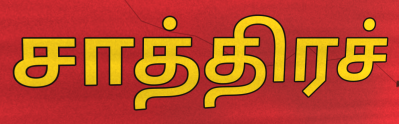
சாத்திரச்